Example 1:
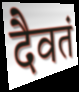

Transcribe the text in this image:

दैवतं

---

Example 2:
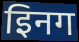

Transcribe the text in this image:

इिनग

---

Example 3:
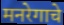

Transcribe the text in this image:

मनरेगाचे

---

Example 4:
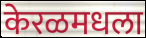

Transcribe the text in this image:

केरळमधला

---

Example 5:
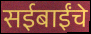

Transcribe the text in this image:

सईबाईंचे